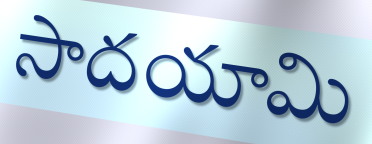
సాదయామి